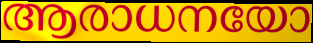
ആരാധനയോ